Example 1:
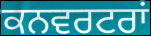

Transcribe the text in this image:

ਕਨਵਰਟਰਾਂ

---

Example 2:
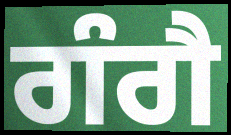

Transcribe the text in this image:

ਗੰਗੈ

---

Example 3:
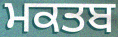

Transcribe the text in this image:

ਮਕਤਬ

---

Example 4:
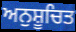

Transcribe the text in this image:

ਅਨੁਸ਼ੂਚਿਤ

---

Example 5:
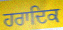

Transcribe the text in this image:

ਹਰਾਦਿਕ